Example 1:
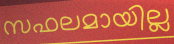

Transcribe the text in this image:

സഫലമായില്ല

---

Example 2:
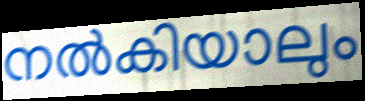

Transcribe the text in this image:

നൽകിയാലും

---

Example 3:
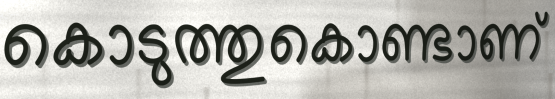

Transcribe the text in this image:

കൊടുത്തുകൊണ്ടാണ്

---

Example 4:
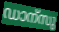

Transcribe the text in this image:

ഡാന്സു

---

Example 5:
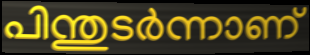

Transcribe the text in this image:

പിന്തുടർന്നാണ്